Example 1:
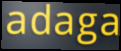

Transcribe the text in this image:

adaga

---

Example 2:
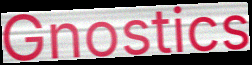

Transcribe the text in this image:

Gnostics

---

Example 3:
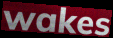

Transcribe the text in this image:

wakes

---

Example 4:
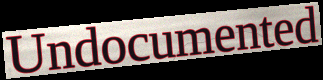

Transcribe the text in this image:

Undocumented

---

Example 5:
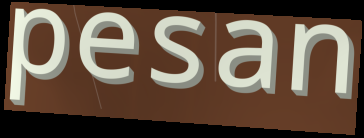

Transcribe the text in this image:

pesan